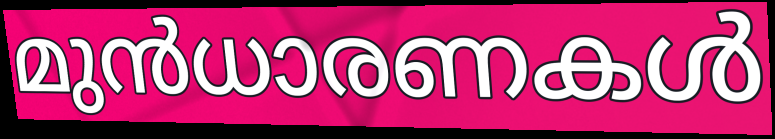
മുൻധാരണകൾ